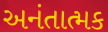
અનંતાત્મક